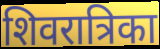
शिवरात्रिका